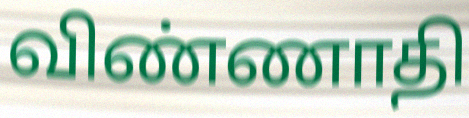
விண்ணாதி